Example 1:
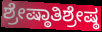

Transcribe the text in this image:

ಶ್ರೇಷ್ಠಾತಿಶ್ರೇಷ್ಠ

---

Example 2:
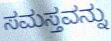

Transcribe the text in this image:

ಸಮಸ್ತವನ್ನು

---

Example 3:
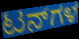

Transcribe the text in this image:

ಟನ್‌ಗಳ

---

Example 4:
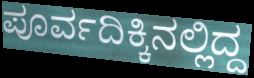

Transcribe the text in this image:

ಪೂರ್ವದಿಕ್ಕಿನಲ್ಲಿದ್ದ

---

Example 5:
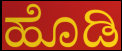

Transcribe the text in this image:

ಹೊಡಿ